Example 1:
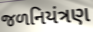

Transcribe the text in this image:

જળનિયંત્રણ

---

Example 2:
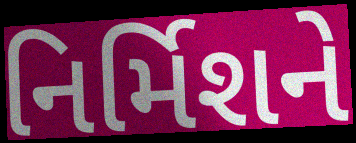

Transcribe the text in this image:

નિર્મિશને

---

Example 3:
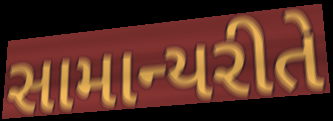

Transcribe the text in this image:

સામાન્યરીતે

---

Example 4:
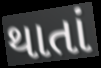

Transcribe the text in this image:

થાતાં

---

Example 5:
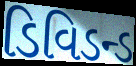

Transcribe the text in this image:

ડિવિડન્ડ